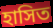
হাসিত